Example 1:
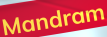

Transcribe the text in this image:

Mandram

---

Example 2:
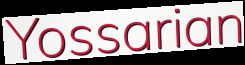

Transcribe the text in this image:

Yossarian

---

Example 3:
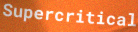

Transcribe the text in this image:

Supercritical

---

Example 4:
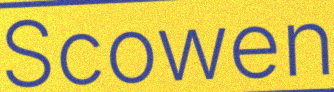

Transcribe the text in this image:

Scowen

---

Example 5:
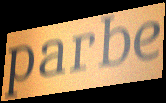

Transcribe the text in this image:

parbe